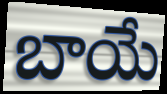
బాయే